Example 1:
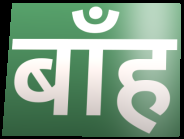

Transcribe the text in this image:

बाँह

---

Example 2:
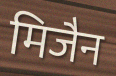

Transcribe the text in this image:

मिजैन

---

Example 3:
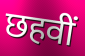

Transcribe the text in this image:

छहवीं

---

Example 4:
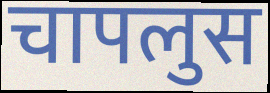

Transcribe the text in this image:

चापलुस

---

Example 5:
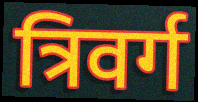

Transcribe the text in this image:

त्रिवर्ग